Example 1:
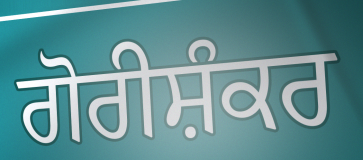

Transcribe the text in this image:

ਗੋਰੀਸ਼ੰਕਰ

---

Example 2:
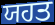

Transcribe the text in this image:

ਯਹਤ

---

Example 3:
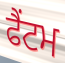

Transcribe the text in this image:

ਫੈਂਟਮ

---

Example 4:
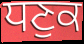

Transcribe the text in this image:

ਧਣੁਕ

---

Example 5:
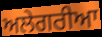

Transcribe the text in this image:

ਅਲੇਗਰੀਆ